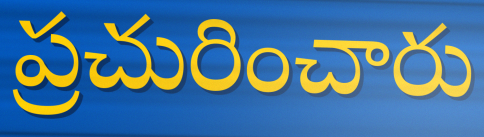
ప్రచురించారు